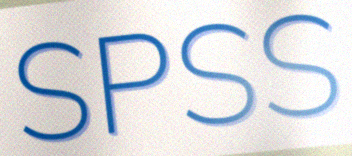
SPSS